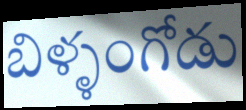
బిళ్ళంగోడు